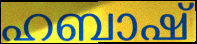
ഹബാഷ്